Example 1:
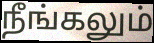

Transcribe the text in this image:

நீங்கலும்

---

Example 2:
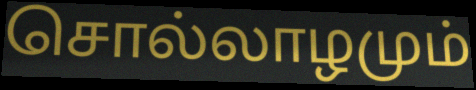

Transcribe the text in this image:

சொல்லாழமும்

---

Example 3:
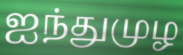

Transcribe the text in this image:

ஐந்துமுழ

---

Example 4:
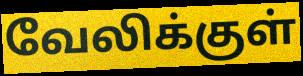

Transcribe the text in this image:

வேலிக்குள்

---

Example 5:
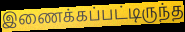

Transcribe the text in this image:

இணைக்கப்பட்டிருந்த